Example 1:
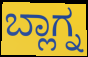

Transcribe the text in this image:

ಬ್ಲಾಗ್ನ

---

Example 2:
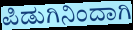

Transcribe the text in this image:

ಪಿಡುಗಿನಿಂದಾಗಿ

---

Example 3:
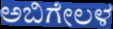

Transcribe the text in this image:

ಅಬಿಗೇಲಳ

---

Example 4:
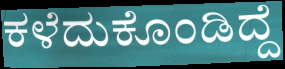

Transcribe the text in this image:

ಕಳೆದುಕೊಂಡಿದ್ದೆ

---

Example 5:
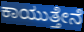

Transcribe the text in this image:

ಕಾಯುತ್ತೇನೆ